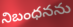
నిబంధనను